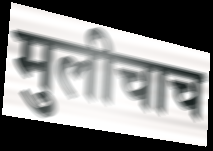
मुलीचाच